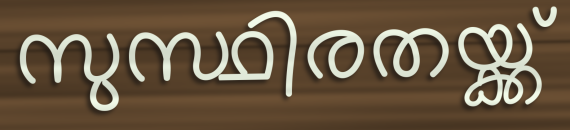
സുസ്ഥിരതയ്ക്ക്